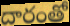
దారంతో